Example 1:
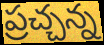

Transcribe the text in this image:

ప్రచ్చన్న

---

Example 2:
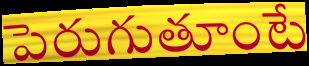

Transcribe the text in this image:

పెరుగుతూంటే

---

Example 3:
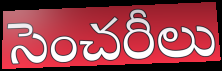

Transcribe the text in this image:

సెంచరీలు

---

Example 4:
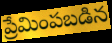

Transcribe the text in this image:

ప్రేమింపబడిన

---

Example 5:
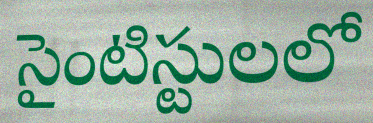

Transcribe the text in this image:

సైంటిస్టులలో